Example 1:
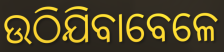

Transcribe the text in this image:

ଉଠିଯିବାବେଳେ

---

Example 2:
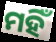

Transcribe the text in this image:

ମହିଁ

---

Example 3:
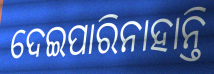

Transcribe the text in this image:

ଦେଇପାରିନାହାନ୍ତି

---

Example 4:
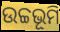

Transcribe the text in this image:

ଉଚ୍ଚଭୂମି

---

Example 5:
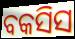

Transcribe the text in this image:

ବକସିସ